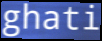
ghati